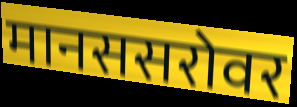
मानससरोवर